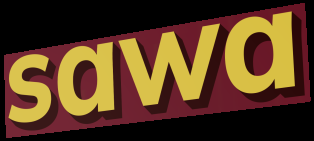
sawa